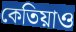
কেতিয়াও